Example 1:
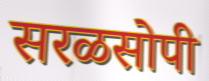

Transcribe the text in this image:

सरळसोपी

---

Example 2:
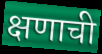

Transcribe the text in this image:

क्षणाची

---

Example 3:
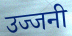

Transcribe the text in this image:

उज्जनी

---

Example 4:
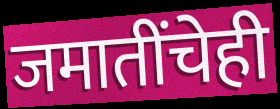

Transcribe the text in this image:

जमातींचेही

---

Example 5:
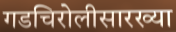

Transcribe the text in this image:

गडचिरोलीसारख्या